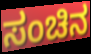
ಸಂಚಿನ